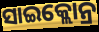
ସାଇକ୍ଲୋନ୍ର